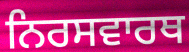
ਨਿਰਸਵਾਰਥ